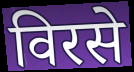
विरसे